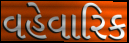
વહેવારિક